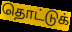
தொட்டுக்